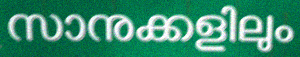
സാനുക്കളിലും